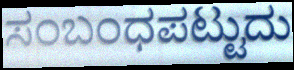
ಸಂಬಂಧಪಟ್ಟುದು